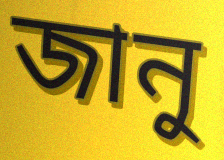
জানু